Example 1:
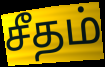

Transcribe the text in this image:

சீதம்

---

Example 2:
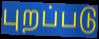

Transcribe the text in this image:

புறப்படு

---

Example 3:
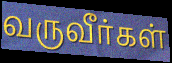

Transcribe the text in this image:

வருவீர்கள்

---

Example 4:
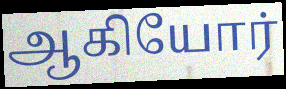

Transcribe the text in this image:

ஆகியோர்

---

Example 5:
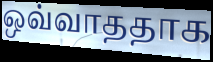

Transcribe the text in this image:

ஒவ்வாததாக